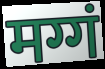
मग्गं